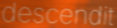
descendit